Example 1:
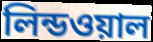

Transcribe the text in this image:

লিন্ডওয়াল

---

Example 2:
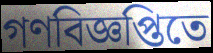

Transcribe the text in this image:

গণবিজ্ঞপ্তিতে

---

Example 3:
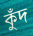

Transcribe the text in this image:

কুঁদ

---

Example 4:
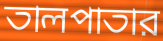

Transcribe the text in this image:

তালপাতার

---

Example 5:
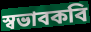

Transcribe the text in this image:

স্বভাবকবি